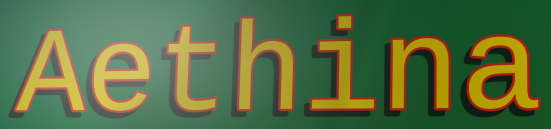
Aethina